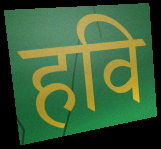
हवि